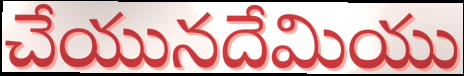
చేయునదేమియు